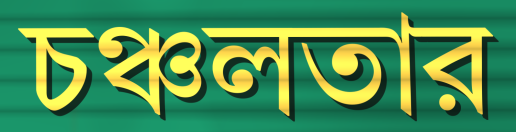
চঞ্চলতার